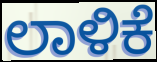
ಲಾಳಿಕೆ